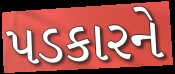
પડકારને